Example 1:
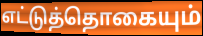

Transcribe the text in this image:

எட்டுத்தொகையும்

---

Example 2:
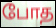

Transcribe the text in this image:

போத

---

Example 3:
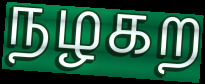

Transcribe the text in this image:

நழகற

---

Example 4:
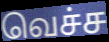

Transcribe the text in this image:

வெச்ச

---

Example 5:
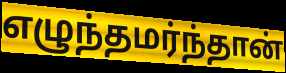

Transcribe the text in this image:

எழுந்தமர்ந்தான்